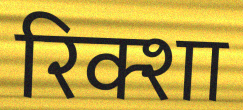
रिक्शा